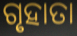
ଗୃହାତା